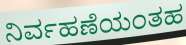
ನಿರ್ವಹಣೆಯಂತಹ